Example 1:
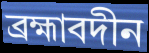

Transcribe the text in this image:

ব্ৰহ্মাবদীন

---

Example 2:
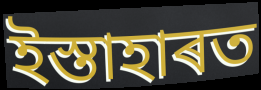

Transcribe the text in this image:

ইস্তাহাৰত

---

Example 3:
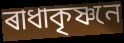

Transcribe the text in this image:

ৰাধাকৃষ্ণনে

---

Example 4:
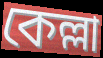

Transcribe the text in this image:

কেল্লা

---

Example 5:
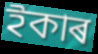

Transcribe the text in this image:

ইকাৰ